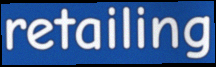
retailing